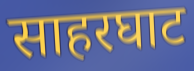
साहरघाट